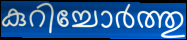
കുറിച്ചോർത്തു